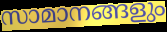
സാമാനങ്ങളും